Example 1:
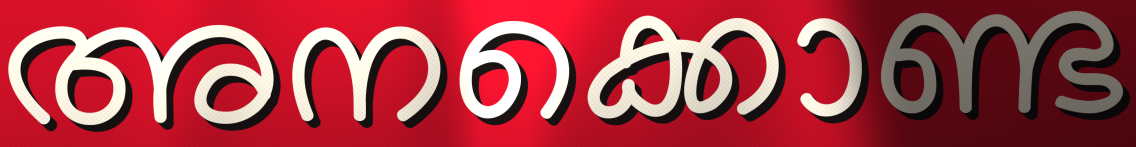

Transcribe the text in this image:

അനക്കൊണ്ട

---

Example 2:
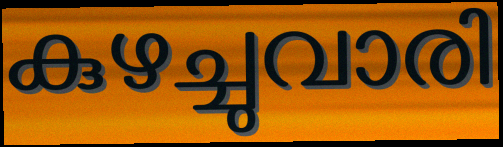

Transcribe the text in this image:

കുഴച്ചുവാരി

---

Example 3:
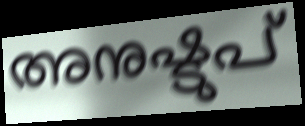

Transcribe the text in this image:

അനുഷ്ടുപ്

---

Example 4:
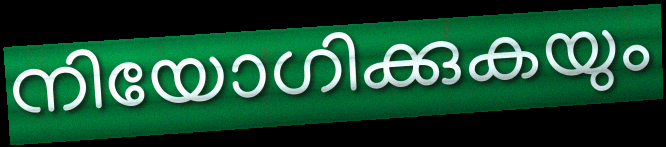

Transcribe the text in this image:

നിയോഗിക്കുകയും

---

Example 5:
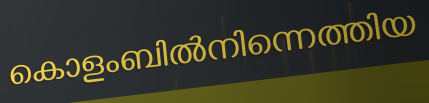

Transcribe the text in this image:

കൊളംബിൽനിന്നെത്തിയ